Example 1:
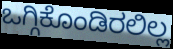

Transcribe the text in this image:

ಒಗ್ಗಿಕೊಂಡಿರಲಿಲ್ಲ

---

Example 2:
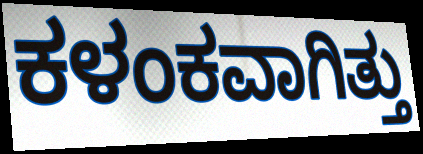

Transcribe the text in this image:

ಕಳಂಕವಾಗಿತ್ತು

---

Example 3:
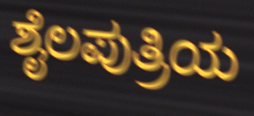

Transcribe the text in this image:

ಶೈಲಪುತ್ರಿಯ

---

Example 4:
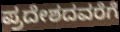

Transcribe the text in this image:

ಪ್ರದೇಶದವರೆಗೆ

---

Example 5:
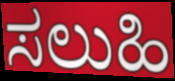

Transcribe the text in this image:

ಸಲುಹಿ